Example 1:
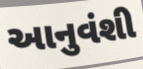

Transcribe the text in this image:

આનુવંશી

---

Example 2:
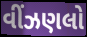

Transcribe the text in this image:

વીંઝણલો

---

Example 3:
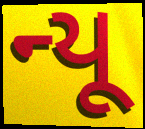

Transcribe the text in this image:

ન્યૂ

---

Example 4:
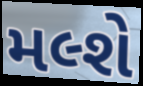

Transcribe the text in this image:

મલ્શે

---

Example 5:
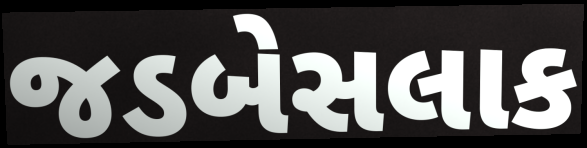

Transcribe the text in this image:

જડબેસલાક